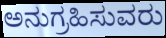
ಅನುಗ್ರಹಿಸುವರು